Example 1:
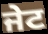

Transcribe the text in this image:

ਜੇਟ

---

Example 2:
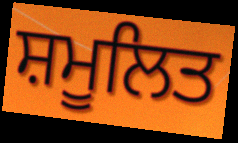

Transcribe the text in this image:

ਸ਼ਮੂਲਿਤ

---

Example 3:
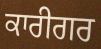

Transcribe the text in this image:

ਕਾਰੀਗਰ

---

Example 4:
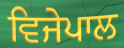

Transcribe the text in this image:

ਵਿਜੇਪਾਲ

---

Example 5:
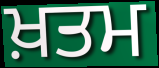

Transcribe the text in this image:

ਖ਼ਤਮ